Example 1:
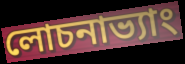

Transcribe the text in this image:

লোচনাভ্যাং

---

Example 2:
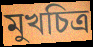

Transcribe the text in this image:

মুখচিত্র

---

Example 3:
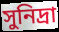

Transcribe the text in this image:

সুনিদ্রা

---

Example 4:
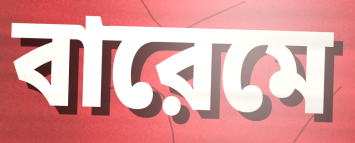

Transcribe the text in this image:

বারেমে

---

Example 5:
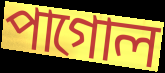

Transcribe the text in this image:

পাগোল